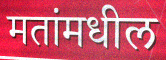
मतांमधील